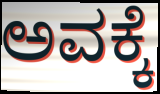
ಅವಕ್ಕೆ